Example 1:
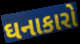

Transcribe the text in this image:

ઘનાકારો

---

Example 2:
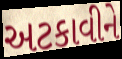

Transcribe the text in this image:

અટકાવીને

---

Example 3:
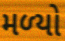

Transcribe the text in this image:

મળ્‍યો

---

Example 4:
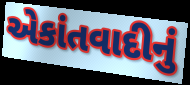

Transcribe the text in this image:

એકાંતવાદીનું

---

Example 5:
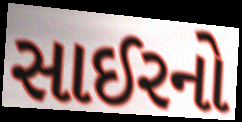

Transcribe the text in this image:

સાઈરનો